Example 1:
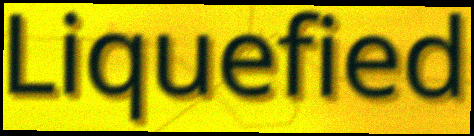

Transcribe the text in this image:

Liquefied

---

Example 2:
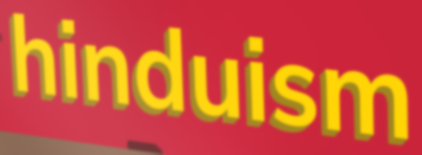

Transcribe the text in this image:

hinduism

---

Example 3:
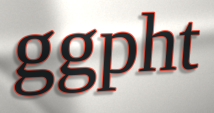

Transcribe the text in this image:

ggpht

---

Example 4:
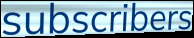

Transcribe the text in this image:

subscribers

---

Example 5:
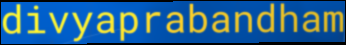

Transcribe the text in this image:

divyaprabandham